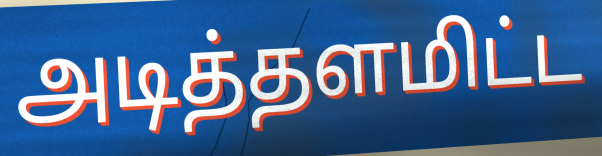
அடித்தளமிட்ட